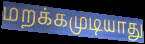
மறக்கமுடியாது